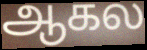
ஆகல